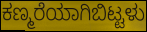
ಕಣ್ಮರೆಯಾಗಿಬಿಟ್ಟಳು